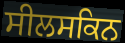
ਸੀਲਸਕਿਨ